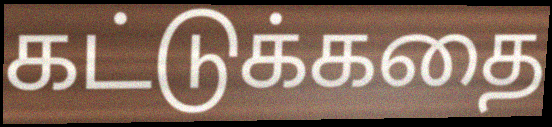
கட்டுக்கதை